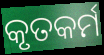
କୃତକର୍ମ